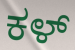
ಕಳ್